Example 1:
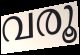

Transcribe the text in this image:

വരൂ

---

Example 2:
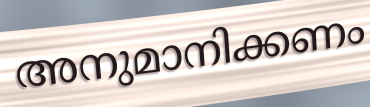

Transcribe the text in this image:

അനുമാനിക്കണം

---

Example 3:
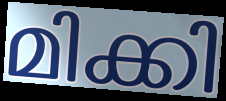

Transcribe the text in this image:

മിക്കി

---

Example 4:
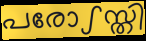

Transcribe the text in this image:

പരോഽസ്തി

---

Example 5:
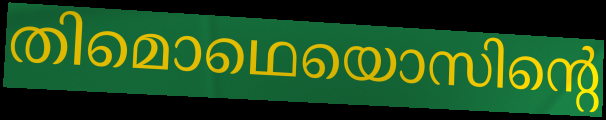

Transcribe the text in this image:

തിമൊഥെയൊസിന്റെ